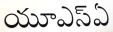
యూఎస్ఏ